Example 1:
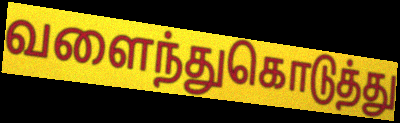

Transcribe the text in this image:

வளைந்துகொடுத்து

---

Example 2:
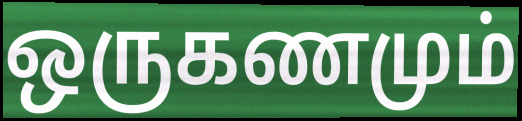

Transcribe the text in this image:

ஒருகணமும்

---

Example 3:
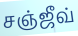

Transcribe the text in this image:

சஞ்ஜீவ்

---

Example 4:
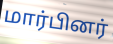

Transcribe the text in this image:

மார்பினர்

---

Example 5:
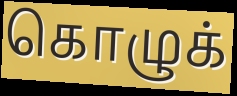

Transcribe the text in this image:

கொழுக்